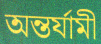
অন্তর্যামী